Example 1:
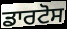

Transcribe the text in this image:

ਡਾਰਟੋਸ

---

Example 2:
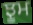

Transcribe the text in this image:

ਝੂਮ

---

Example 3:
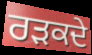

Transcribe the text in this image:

ਰੜਕਦੇ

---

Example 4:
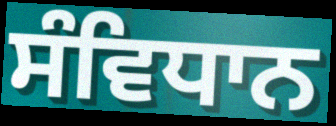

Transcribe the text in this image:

ਸੰਵਿਧਾਨ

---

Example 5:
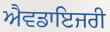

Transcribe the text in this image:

ਐਵਡਾਇਜਰੀ